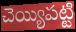
చెయ్యిపట్టి